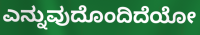
ಎನ್ನುವುದೊಂದಿದೆಯೋ